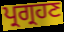
ਪ੍ਰਗ੍ਰਹਣ